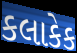
કલાકેક